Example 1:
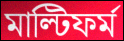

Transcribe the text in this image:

মাল্টিফর্ম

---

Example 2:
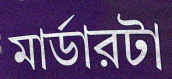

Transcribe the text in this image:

মার্ডারটা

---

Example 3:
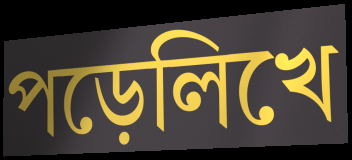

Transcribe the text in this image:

পড়েলিখে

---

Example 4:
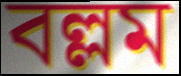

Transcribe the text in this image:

বল্লম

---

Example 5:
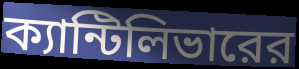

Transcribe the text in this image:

ক্যান্টিলিভারের